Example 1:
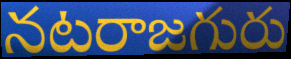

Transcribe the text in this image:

నటరాజగురు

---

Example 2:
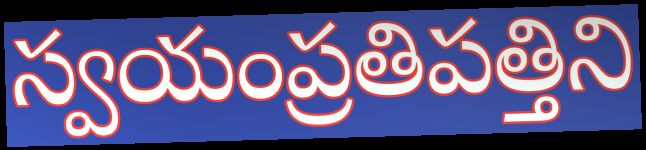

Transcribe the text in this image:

స్వయంప్రతిపత్తిని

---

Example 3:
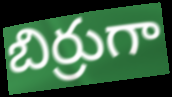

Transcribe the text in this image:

బిర్రుగా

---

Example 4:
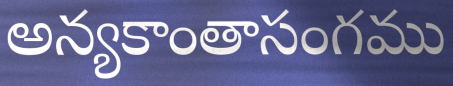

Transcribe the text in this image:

అన్యకాంతాసంగము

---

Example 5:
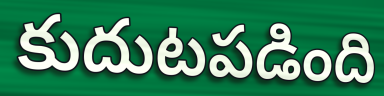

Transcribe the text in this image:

కుదుటపడింది